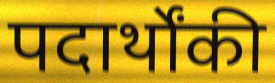
पदार्थोंकी